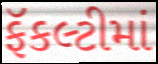
ફૅકલ્ટીમાં